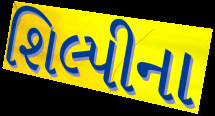
શિલ્પીના